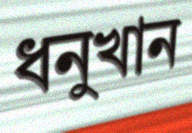
ধনুখান